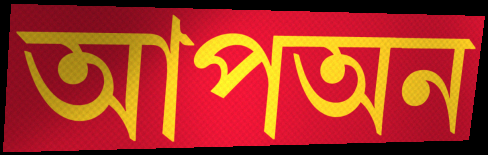
আপঅন